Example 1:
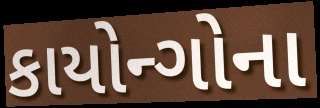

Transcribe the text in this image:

કાયોન્ગોના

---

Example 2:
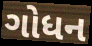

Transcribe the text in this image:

ગોધન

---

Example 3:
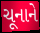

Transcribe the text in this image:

ચૂનાને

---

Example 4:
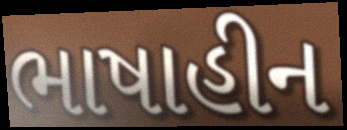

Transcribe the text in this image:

ભાષાહીન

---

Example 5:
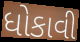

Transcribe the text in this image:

ધોકાવી